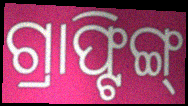
ଗ୍ରାଫ୍ଟିଙ୍ଗ୍